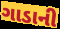
ગાડાની